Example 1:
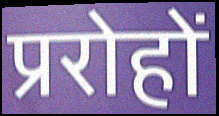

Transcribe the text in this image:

प्ररोहों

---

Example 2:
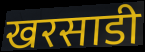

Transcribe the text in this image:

खरसाडी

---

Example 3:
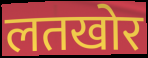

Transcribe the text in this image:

लतखोर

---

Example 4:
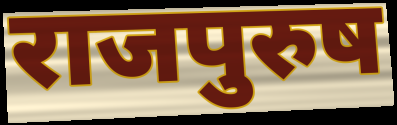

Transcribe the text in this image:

राजपुरुष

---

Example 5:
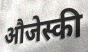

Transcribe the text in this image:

औजेस्की